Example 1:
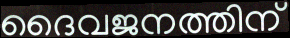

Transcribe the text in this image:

ദൈവജനത്തിന്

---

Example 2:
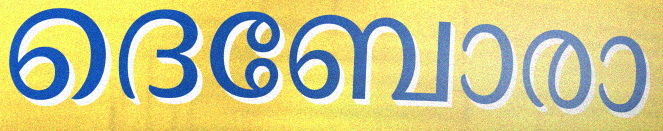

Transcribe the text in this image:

ദെബോരാ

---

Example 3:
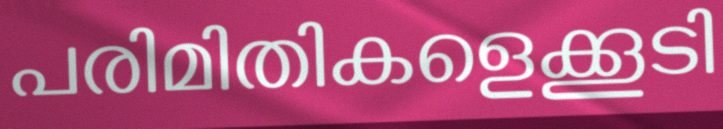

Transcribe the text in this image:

പരിമിതികളെക്കൂടി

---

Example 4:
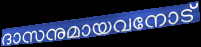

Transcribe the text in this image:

ദാസനുമായവനോട്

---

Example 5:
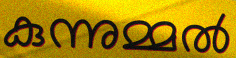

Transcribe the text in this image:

കുന്നുമ്മൽ